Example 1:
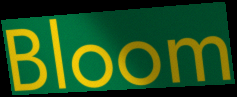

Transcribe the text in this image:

Bloom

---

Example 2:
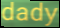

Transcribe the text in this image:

dady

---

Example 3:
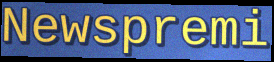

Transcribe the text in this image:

Newspremi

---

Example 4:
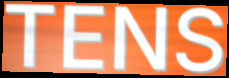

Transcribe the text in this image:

TENS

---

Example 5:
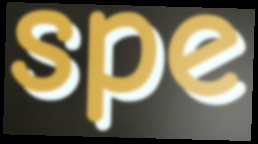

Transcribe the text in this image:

spe